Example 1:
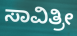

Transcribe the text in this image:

ಸಾವಿತ್ರೀ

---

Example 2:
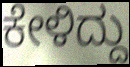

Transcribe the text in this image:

ಕೇಳಿದ್ದು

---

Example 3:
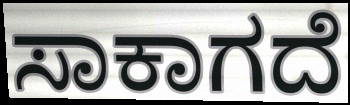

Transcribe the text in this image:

ಸಾಕಾಗದೆ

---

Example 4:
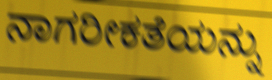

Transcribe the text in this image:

ನಾಗರೀಕತೆಯನ್ನು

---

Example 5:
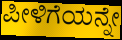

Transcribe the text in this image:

ಪೀಳಿಗೆಯನ್ನೇ